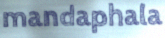
mandaphala